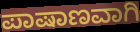
ಪಾಷಾಣವಾಗಿ